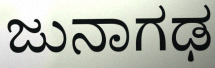
ಜುನಾಗಢ